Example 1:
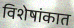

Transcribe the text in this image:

विशेषांकात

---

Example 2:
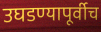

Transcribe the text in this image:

उघडण्यापूर्वीच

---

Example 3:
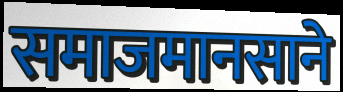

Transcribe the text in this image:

समाजमानसाने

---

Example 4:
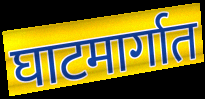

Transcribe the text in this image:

घाटमार्गात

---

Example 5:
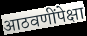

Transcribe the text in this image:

आठवणींपेक्षा